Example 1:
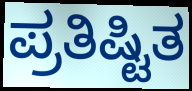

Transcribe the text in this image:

ಪ್ರತಿಷ್ಟಿತ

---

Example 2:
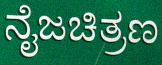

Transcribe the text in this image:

ನೈಜಚಿತ್ರಣ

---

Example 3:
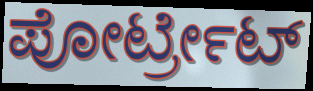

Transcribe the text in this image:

ಪೋರ್ಟ್ರೇಟ್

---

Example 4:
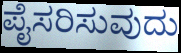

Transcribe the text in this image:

ಪೈಸರಿಸುವುದು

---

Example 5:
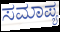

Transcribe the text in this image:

ಸಮಾಪ್ಯ